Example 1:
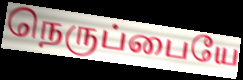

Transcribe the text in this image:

நெருப்பையே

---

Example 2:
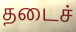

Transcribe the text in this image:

தடைச்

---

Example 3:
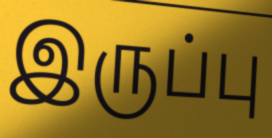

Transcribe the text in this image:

இருப்பு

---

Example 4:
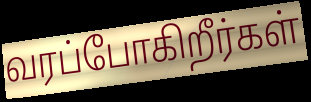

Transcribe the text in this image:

வரப்போகிறீர்கள்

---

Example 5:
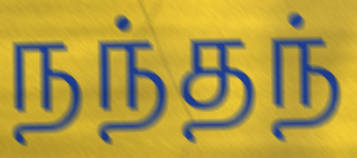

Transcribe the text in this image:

நந்தந்